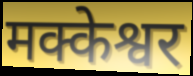
मक्केश्वर